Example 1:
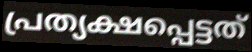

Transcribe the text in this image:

പ്രത്യക്ഷപ്പെട്ടത്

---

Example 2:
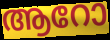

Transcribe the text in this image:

ആറോ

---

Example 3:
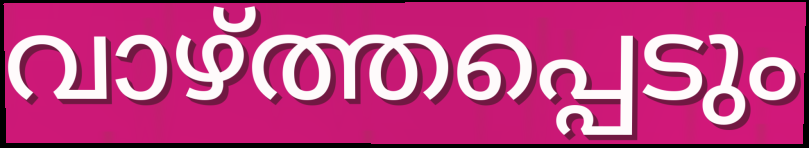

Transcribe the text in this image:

വാഴ്ത്തപ്പെടും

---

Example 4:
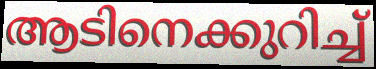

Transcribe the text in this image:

ആടിനെക്കുറിച്ച്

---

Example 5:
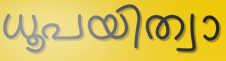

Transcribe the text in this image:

ധൂപയിത്വാ